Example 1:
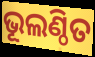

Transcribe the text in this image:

ଭୂଲଣ୍ଠିତ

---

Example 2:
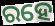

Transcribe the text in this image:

ରହେ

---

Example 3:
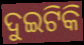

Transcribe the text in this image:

ଦୁଇଟିକି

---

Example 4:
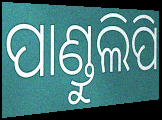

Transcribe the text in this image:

ପାଣ୍ଡୁଲିପି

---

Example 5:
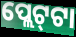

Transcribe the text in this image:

ପ୍ଲେଟ୍‍ଟା